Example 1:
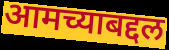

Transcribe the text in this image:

आमच्याबद्दल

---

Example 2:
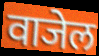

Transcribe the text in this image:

वाजेल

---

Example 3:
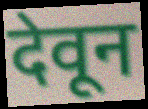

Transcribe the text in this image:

देवून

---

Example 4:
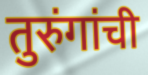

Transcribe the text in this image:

तुरुंगांची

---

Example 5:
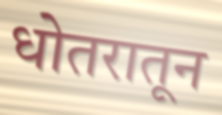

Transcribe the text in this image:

धोतरातून